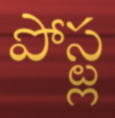
పోస్ట్ల